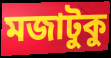
মজাটুকু